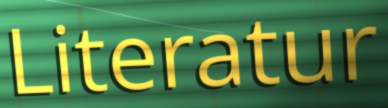
Literatur